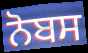
ਨੋਬਸ